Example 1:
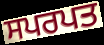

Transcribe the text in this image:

ਸਪਰਪਤ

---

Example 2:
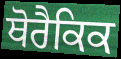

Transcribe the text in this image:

ਥੋਰੈਕਿਕ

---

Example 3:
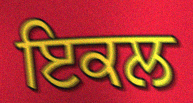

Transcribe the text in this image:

ਇਕਲ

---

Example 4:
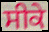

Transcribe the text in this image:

ਸੀਕੇ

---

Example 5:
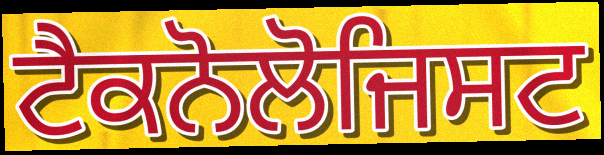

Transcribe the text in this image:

ਟੈਕਨੋਲੋਜਿਸਟ